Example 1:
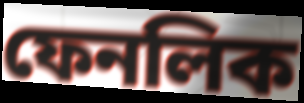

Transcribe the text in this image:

ফেনলিক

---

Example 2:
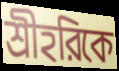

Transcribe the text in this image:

শ্রীহরিকে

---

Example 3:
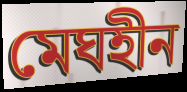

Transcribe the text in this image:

মেঘহীন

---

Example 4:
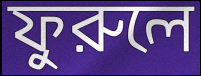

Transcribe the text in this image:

ফুরুলে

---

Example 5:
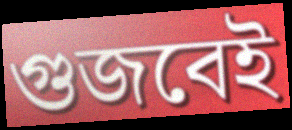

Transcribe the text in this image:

গুজবেই